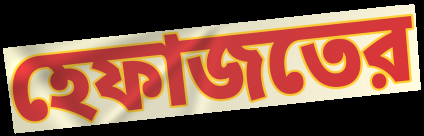
হেফাজতের